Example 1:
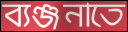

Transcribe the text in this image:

ব্যঞ্জনাতে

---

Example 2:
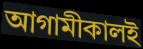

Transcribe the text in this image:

আগামীকালই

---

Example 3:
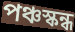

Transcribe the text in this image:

পঞ্চস্কন্ধ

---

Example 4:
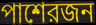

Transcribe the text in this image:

পাশেরজন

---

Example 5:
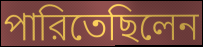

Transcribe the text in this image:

পারিতেছিলেন